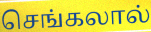
செங்கலால்